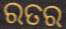
ରତର